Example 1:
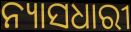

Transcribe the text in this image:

ନ୍ୟାସଧାରୀ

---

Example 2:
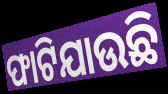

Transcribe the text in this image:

ଫାଟିଯାଉଛି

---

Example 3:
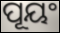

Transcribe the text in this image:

ପୂୟଂ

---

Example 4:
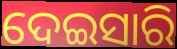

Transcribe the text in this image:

ଦେଇସାରି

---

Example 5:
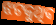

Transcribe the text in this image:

ଝଟକୁଥିବ